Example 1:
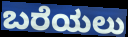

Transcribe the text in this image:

ಬರೆಯಲು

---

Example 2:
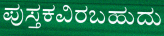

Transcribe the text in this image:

ಪುಸ್ತಕವಿರಬಹುದು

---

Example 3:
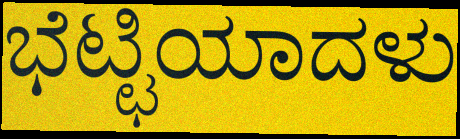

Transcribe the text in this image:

ಭೆಟ್ಟಿಯಾದಳು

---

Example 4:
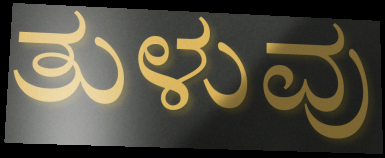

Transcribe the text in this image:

ತುಳುವು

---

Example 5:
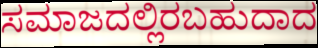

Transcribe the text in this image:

ಸಮಾಜದಲ್ಲಿರಬಹುದಾದ